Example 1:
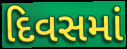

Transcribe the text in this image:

દિવસમાં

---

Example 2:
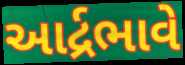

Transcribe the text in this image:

આર્દ્રભાવે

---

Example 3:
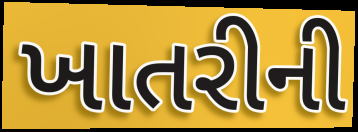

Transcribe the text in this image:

ખાતરીની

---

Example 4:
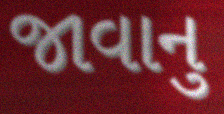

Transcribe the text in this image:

જાવાનુ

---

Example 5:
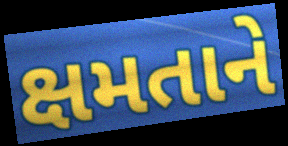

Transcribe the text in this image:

ક્ષમતાને